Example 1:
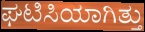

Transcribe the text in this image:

ಘಟಿಸಿಯಾಗಿತ್ತು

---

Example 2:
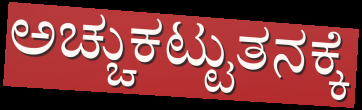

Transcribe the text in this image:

ಅಚ್ಚುಕಟ್ಟುತನಕ್ಕೆ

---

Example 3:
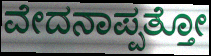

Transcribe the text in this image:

ವೇದನಾಪ್ಪತ್ತೋ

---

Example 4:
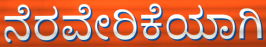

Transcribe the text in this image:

ನೆರವೇರಿಕೆಯಾಗಿ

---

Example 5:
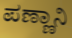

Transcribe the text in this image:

ಪಣ್ಣಾನಿ